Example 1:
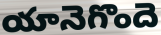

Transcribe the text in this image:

యానెగొందె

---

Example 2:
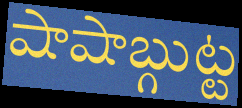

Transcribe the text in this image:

షాషాబ్గుట్ట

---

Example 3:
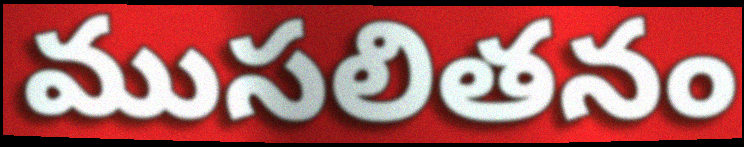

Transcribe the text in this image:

ముసలితనం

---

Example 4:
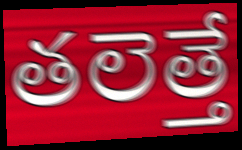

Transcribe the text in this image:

తలెత్తే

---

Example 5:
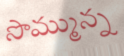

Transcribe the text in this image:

సొమ్మున్న